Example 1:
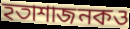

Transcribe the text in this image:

হতাশাজনকও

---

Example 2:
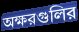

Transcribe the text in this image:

অক্ষরগুলির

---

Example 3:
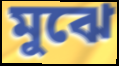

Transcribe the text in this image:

মুঝে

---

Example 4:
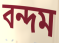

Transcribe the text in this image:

বন্দম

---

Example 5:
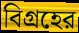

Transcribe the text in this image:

বিগ্রহের